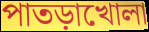
পাতড়াখোলা